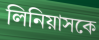
লিনিয়াসকে